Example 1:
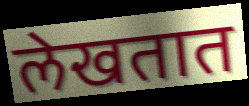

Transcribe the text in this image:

लेखतात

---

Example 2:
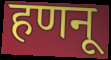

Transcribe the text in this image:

हणनू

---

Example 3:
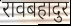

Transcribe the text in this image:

रावबहादुर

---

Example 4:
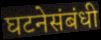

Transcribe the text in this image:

घटनेसंबंधी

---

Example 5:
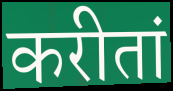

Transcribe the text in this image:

करीतां